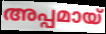
അപ്പമായ്